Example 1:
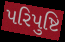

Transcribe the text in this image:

પરિપુષ્ટિ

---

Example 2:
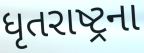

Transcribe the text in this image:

ધૃતરાષ્ટ્રના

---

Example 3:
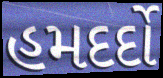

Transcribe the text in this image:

હમદર્દો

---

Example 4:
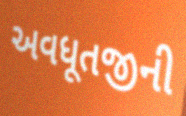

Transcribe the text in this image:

અવધૂતજીની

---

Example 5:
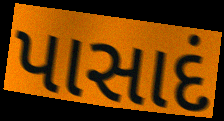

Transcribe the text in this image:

પાસાદં